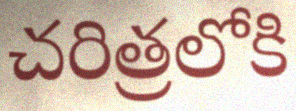
చరిత్రలోకి